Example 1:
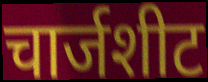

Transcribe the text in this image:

चार्जशीट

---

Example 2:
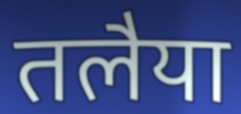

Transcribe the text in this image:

तलैया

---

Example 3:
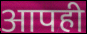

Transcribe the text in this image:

आपही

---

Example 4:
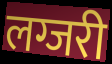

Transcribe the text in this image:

लग्जरी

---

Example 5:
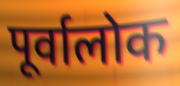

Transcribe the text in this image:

पूर्वालोक